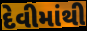
દેવીમાંથી